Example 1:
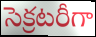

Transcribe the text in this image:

సెక్రటరీగా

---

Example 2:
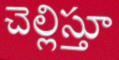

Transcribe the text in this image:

చెల్లిస్తూ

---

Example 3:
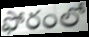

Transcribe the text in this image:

ఫోరంలో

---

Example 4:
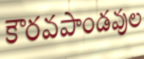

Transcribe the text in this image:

కౌరవపాండవుల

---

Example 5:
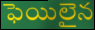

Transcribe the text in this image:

ఫెయిలైన